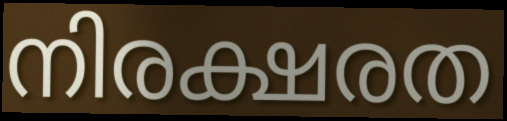
നിരക്ഷരത